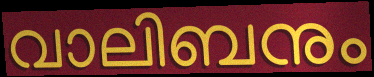
വാലിബനും